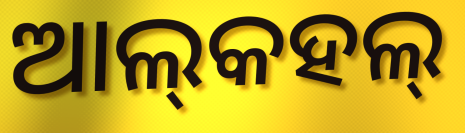
ଆଲ୍‌କହଲ୍